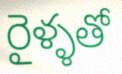
రైళ్ళతో